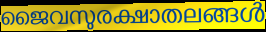
ജൈവസുരക്ഷാതലങ്ങൾ